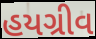
હયગ્રીવ